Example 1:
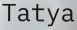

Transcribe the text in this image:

Tatya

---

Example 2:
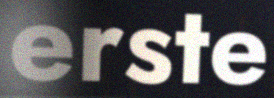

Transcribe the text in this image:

erste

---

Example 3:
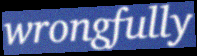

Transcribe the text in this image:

wrongfully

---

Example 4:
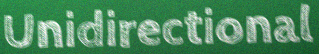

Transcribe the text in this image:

Unidirectional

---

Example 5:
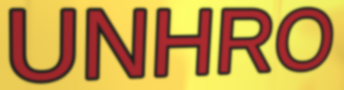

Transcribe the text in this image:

UNHRO